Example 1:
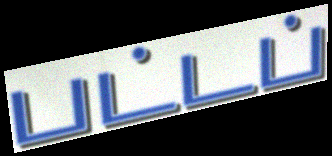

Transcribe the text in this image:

பட்டப்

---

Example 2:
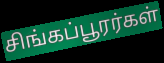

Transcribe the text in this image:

சிங்கப்பூரர்கள்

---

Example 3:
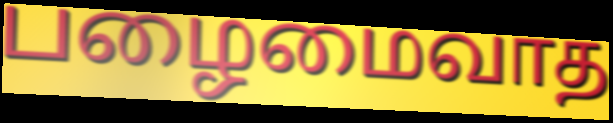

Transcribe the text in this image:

பழைமைவாத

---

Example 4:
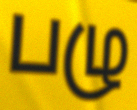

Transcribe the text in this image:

பழு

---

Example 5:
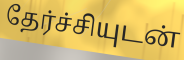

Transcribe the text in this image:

தேர்ச்சியுடன்